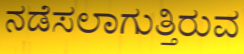
ನಡೆಸಲಾಗುತ್ತಿರುವ